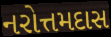
નરોત્તમદાસ